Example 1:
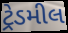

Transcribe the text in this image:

ટ્રેડમીલ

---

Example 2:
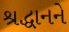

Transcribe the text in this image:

શ્રદ્ધાનને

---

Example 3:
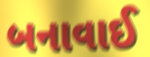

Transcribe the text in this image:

બનાવાઈ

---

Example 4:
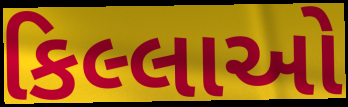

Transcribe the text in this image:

કિલ્લાઓ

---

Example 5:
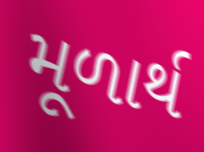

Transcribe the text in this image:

મૂળાર્થ